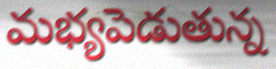
మభ్యపెడుతున్న